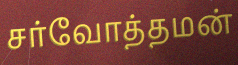
சர்வோத்தமன்